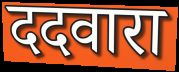
ददवारा